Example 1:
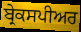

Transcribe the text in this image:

ਬ੍ਰੇਕਸਪੀਅਰ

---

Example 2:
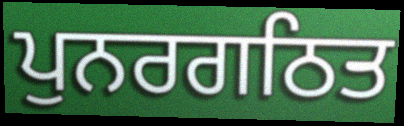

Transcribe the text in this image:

ਪੁਨਰਗਠਿਤ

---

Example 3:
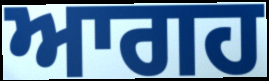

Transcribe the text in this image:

ਆਗਹ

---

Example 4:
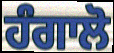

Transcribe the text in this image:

ਹੰਗਾਲੋ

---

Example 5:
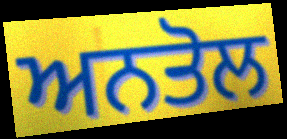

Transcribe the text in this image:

ਅਨਤੋਲ